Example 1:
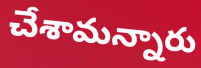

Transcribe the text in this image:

చేశామన్నారు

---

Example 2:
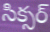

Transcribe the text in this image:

సిక్సర్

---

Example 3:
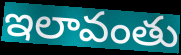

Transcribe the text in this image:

ఇలావంతు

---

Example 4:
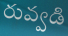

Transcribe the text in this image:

రువ్వడి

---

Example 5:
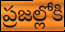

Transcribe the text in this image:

ప్రజల్లోకి